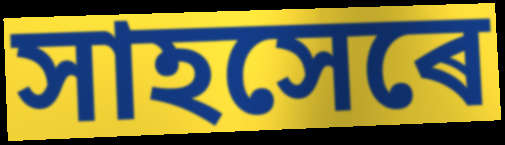
সাহসেৰে